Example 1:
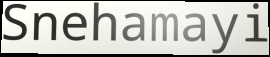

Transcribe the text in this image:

Snehamayi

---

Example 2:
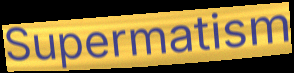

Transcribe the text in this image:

Supermatism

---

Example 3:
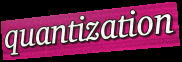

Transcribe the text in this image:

quantization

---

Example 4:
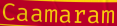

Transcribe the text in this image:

Caamaram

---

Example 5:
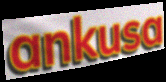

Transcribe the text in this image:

ankusa